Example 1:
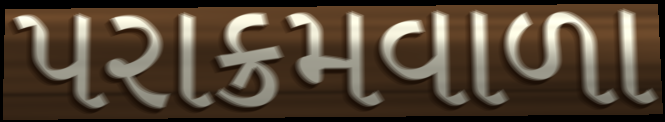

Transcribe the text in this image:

પરાક્રમવાળા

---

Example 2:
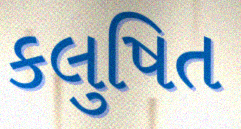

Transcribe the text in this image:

કલુષિત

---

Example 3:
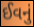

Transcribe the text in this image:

ઈવનું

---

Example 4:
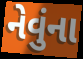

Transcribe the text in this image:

નેવુંના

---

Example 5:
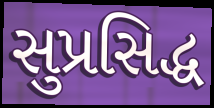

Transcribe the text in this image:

સુપ્રસિદ્ધ